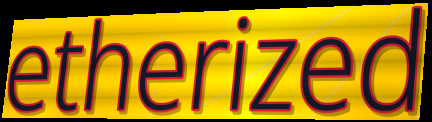
etherized